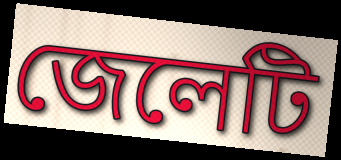
জেলেটি